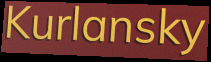
Kurlansky